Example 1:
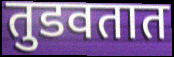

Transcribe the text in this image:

तुडवतात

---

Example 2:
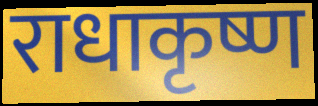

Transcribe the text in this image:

राधाकृष्ण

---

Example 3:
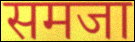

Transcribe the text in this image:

समजा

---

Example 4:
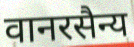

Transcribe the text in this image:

वानरसैन्य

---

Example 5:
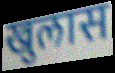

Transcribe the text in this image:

खुलास